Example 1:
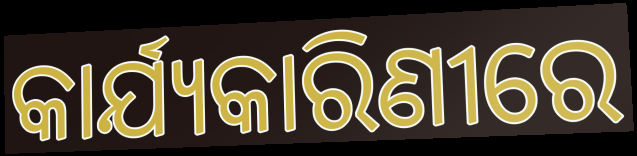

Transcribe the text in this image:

କାର୍ଯ୍ୟକାରିଣୀରେ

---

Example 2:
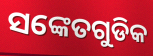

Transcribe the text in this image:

ସଙ୍କେତଗୁଡିକ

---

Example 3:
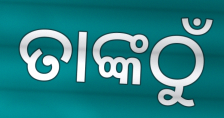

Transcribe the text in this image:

ତାଙ୍କଠୁଁ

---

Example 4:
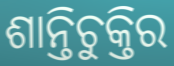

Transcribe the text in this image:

ଶାନ୍ତିଚୁକ୍ତିର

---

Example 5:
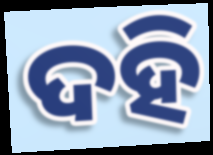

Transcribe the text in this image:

ଦହି